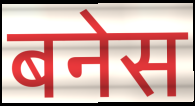
बनेस